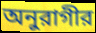
অনুরাগীর